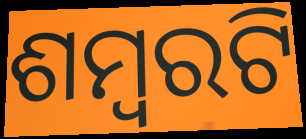
ଶମ୍ବରଟି